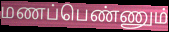
மணப்பெண்ணும்